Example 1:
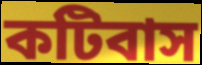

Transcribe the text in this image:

কটিবাস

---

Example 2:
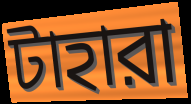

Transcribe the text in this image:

টাহারা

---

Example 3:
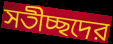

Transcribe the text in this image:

সতীচ্ছদের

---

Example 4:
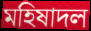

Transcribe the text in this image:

মহিষাদল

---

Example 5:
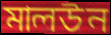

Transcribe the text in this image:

মালউন